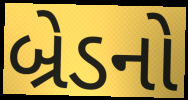
બ્રેડનો